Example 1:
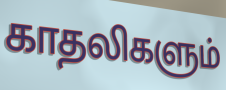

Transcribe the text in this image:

காதலிகளும்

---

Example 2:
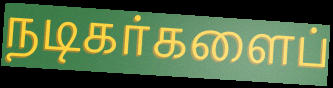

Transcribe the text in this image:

நடிகர்களைப்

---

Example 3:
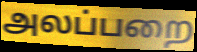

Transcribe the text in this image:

அலப்பறை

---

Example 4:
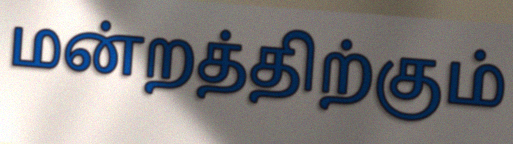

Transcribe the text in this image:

மன்றத்திற்கும்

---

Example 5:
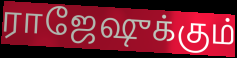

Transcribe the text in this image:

ராஜேஷுக்கும்